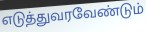
எடுத்துவரவேண்டும்